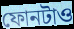
ফোনটাও